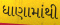
ધાણામાંથી